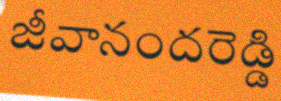
జీవానందరెడ్డి